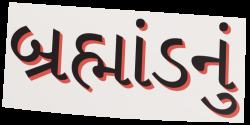
બ્રહ્માંડનું